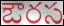
ఔరస